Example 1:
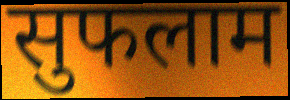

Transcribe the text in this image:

सुफलाम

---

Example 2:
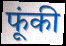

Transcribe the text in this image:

फूंकी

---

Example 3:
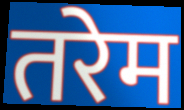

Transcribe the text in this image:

तरेम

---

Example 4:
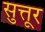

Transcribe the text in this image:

सुत्तूर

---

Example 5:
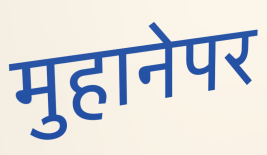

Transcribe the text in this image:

मुहानेपर